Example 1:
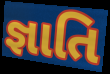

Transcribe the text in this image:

જ્ઞાતિ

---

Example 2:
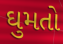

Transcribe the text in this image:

ઘુમતો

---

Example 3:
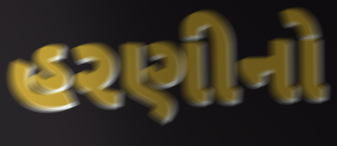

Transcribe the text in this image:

હરણીનો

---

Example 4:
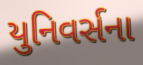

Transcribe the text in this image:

યુનિવર્સના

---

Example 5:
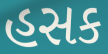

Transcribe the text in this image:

હસક